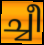
ച്ചീ